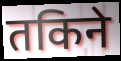
तकिने